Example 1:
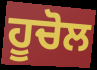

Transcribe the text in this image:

ਹੂਚੋਲ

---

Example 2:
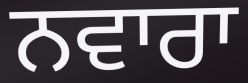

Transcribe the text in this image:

ਨਵਾਰਾ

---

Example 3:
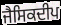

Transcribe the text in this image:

ਜੈਸਿਕਦੀਪ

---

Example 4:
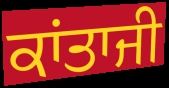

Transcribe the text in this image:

ਕਾਂਤਾਜੀ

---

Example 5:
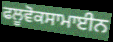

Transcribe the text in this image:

ਫਲੂਵੋਕਸਾਮਾਈਨ